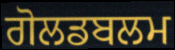
ਗੋਲਡਬਲਮ